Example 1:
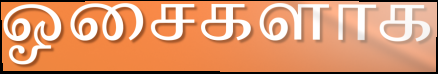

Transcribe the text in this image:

ஓசைகளாக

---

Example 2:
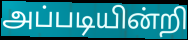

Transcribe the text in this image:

அப்படியின்றி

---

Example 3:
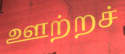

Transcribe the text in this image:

ஊற்றச்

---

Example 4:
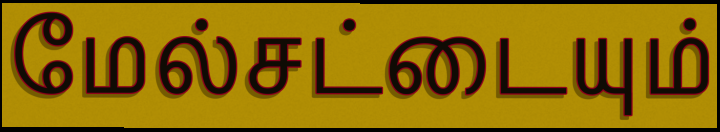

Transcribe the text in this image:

மேல்சட்டையும்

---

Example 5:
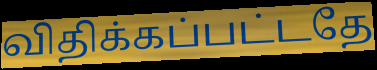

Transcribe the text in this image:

விதிக்கப்பட்டதே